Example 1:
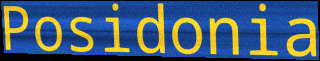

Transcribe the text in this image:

Posidonia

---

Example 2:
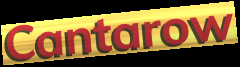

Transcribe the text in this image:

Cantarow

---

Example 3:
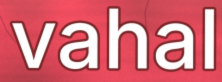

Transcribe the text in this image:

vahal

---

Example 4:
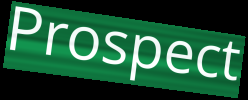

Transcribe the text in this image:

Prospect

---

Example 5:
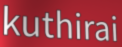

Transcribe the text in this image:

kuthirai